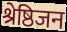
श्रेष्ठिजन